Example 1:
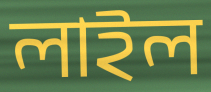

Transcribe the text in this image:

লাইল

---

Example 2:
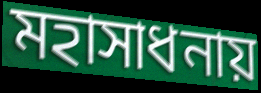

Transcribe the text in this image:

মহাসাধনায়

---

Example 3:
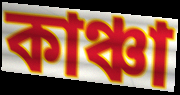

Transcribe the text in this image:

কাঞ্চা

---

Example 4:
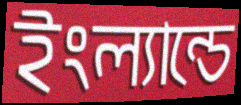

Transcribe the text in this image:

ইংল্যান্ডে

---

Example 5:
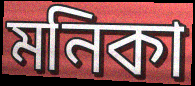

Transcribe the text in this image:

মনিকা